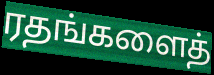
ரதங்களைத்